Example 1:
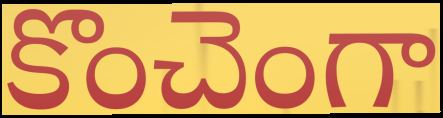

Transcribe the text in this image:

కొంచెంగా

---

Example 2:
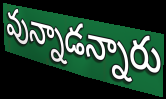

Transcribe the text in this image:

వున్నాడన్నారు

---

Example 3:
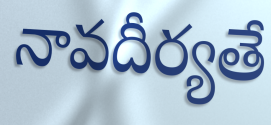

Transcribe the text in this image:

నావదీర్యతే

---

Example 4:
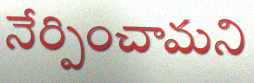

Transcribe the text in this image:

నేర్పించామని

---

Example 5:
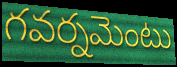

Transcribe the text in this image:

గవర్నమెంటు